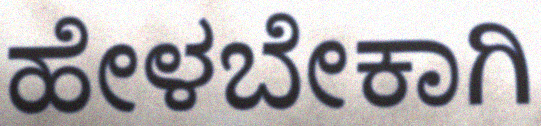
ಹೇಳಬೇಕಾಗಿ